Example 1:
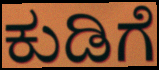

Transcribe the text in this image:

ಕುಡಿಗೆ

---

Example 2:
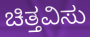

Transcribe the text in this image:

ಚಿತ್ತವಿಸು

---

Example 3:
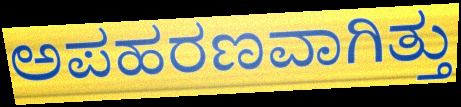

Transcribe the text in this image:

ಅಪಹರಣವಾಗಿತ್ತು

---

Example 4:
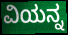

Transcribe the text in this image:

ವಿಯನ್ನ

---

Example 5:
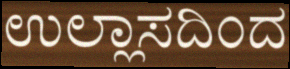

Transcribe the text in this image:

ಉಲ್ಲಾಸದಿಂದ